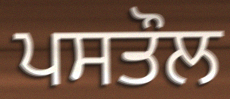
ਪਸਤੌਲ